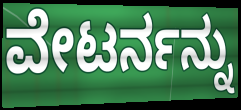
ವೇಟರ್ನನ್ನು